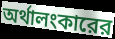
অর্থালংকারের